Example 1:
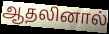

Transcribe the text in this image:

ஆதலினால்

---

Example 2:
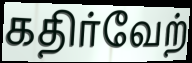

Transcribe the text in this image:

கதிர்வேற்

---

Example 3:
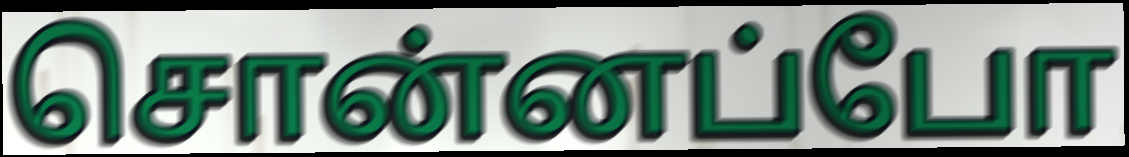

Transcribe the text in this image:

சொன்னப்போ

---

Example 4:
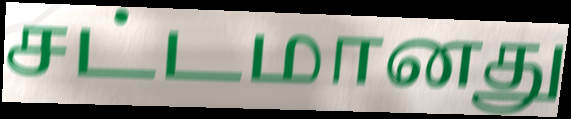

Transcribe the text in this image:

சட்டமானது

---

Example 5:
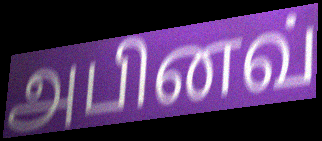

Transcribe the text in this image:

அபினவ்